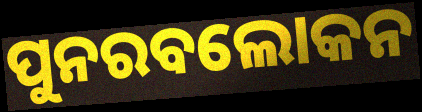
ପୁନରବଲୋକନ